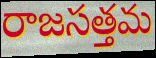
రాజసత్తమ